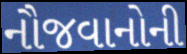
નૌજવાનોની